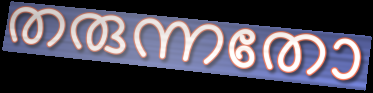
തരുന്നതോ